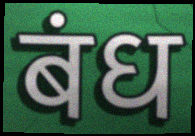
बंध